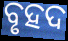
ବୃହଦ